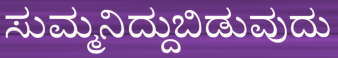
ಸುಮ್ಮನಿದ್ದುಬಿಡುವುದು